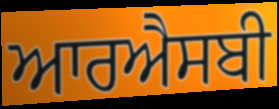
ਆਰਐਸਬੀ